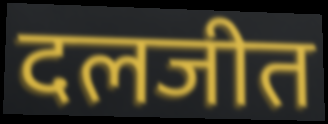
दलजीत